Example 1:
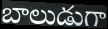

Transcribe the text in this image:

బాలుడుగా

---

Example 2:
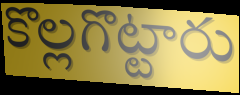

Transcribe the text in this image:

కొల్లగొట్టారు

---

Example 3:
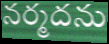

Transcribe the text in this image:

నర్మదను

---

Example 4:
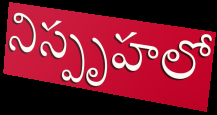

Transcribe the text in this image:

నిస్పృహలో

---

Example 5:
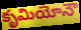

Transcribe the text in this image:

కృమియోనౌ